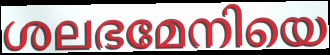
ശലഭമേനിയെ